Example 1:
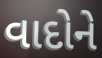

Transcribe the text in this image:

વાદોને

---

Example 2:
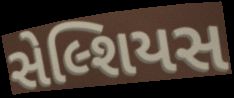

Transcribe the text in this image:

સેલ્શિયસ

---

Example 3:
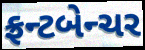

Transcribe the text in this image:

ફ્રન્ટબેન્ચર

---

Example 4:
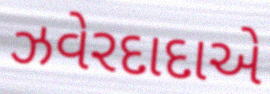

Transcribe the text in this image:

ઝવેરદાદાએ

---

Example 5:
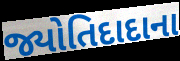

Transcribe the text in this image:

જ્યોતિદાદાના